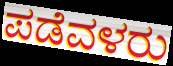
ಪಡೆವಳರು